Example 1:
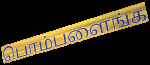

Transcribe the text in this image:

பொம்பளைங்க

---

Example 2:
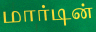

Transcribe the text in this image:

மார்டின்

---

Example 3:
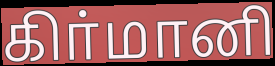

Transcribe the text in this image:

கிர்மானி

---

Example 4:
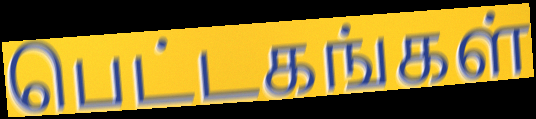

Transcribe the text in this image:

பெட்டகங்கள்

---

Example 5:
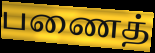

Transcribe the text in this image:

பணைத்